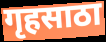
गृहसाठा